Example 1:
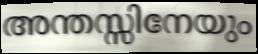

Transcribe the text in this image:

അന്തസ്സിനേയും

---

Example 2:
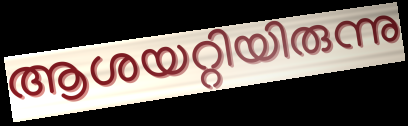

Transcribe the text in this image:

ആശയറ്റിയിരുന്നു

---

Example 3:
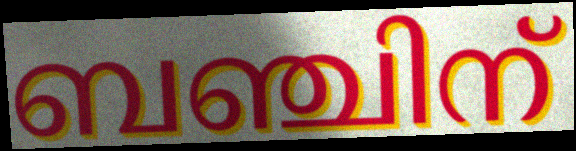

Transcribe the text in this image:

ബഞ്ചിന്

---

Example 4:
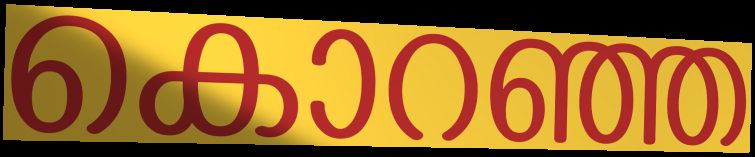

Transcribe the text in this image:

കൊറഞ്ഞ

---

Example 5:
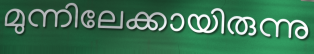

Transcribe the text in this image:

മുന്നിലേക്കായിരുന്നു